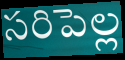
సరిపెల్ల